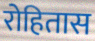
रोहितास